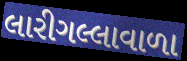
લારીગલ્લાવાળા